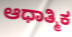
ಆಧಾತ್ಮಿಕ